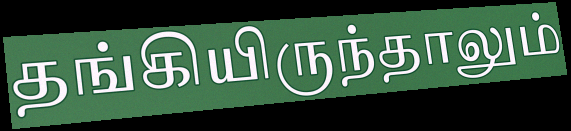
தங்கியிருந்தாலும்